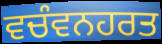
ਵਚੰਵਨਹਰਤ